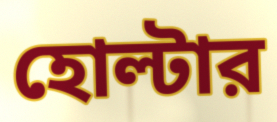
হোল্টার